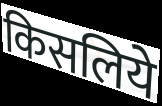
किसलिये